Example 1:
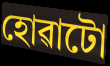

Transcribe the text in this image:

হোৱাটো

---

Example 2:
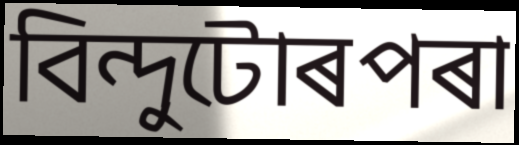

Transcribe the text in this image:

বিন্দুটোৰপৰা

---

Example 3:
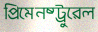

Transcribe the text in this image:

প্ৰিমেনষ্ট্ৰুৱেল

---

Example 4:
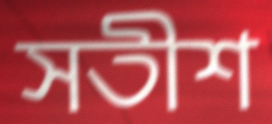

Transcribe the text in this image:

সতীশ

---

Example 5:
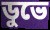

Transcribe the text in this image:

ডুভে